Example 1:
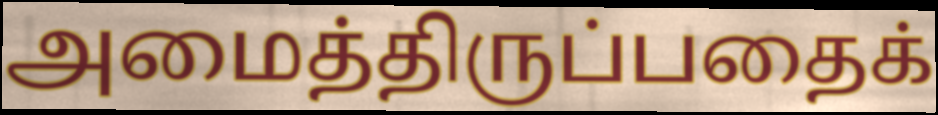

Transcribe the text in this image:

அமைத்திருப்பதைக்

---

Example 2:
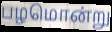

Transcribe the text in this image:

பழமொன்று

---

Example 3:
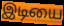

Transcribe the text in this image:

இடியை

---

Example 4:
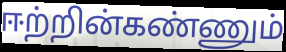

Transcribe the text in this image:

ஈற்றின்கண்ணும்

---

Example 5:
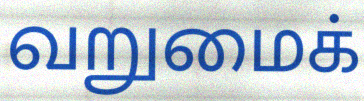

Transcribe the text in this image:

வறுமைக்